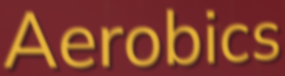
Aerobics